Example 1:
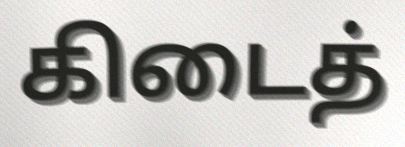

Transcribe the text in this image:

கிடைத்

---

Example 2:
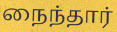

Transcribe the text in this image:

நைந்தார்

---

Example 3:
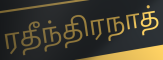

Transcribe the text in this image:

ரதீந்திரநாத்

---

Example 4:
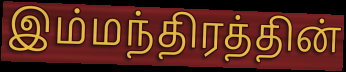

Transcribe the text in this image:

இம்மந்திரத்தின்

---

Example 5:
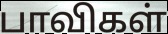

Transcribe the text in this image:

பாவிகள்